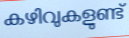
കഴിവുകളുണ്ട്